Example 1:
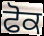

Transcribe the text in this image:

ਫੋਕ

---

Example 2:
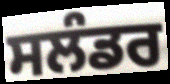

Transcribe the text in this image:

ਸਲੰਡਰ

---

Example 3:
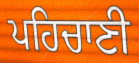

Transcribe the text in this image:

ਪਹਿਚਾਣੀ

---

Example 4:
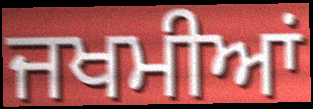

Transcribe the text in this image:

ਜਖਮੀਆਂ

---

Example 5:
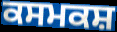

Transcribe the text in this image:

ਕਸਮਕਸ਼